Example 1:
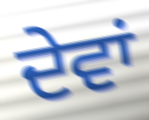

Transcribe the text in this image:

ਦੇਵਾਂ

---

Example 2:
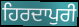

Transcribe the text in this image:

ਹਿਰਦਾਪੁਰੀ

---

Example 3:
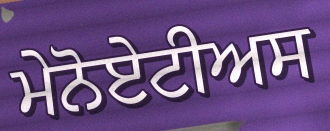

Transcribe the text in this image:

ਮੇਨੋਏਟੀਅਸ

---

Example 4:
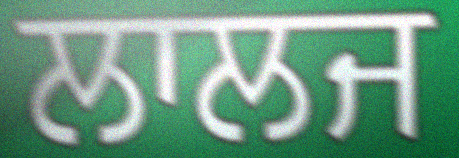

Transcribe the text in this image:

ਲਾਲਜ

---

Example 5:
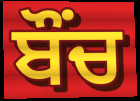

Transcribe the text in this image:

ਬੌਂਚ